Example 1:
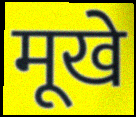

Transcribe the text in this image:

मूखे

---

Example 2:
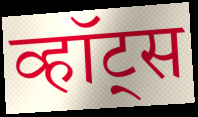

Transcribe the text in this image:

व्हॉट्‌स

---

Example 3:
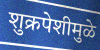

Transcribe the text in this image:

शुक्रपेशीमुळे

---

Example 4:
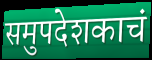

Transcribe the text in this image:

समुपदेशकाचं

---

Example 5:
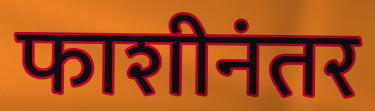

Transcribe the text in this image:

फाशीनंतर